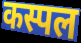
कस्पल